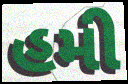
હમી